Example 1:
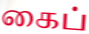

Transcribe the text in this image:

கைப்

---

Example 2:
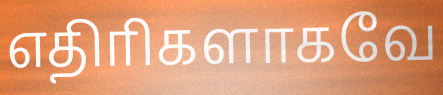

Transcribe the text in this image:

எதிரிகளாகவே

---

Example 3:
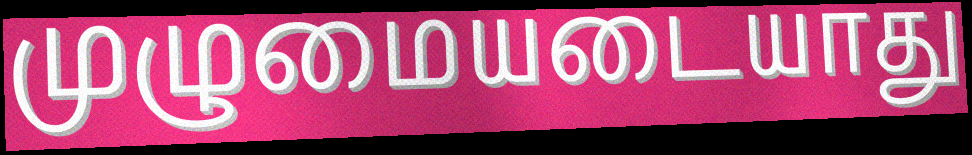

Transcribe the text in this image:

முழுமையடையாது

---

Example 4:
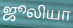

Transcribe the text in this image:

ஜூலியா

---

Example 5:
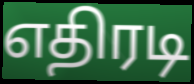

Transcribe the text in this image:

எதிரடி